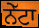
ਨੇੱਟਾ